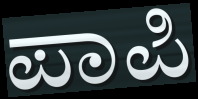
ಪಾಪಿ